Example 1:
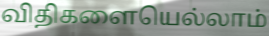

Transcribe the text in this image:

விதிகளையெல்லாம்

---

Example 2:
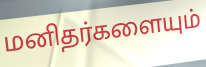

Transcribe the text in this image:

மனிதர்களையும்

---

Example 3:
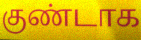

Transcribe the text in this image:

குண்டாக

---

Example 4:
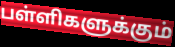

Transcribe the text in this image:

பள்ளிகளுக்கும்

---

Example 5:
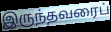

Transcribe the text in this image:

இருந்தவரைப்